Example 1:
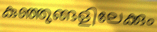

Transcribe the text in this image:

കുഞ്ഞുങ്ങളിലേക്കും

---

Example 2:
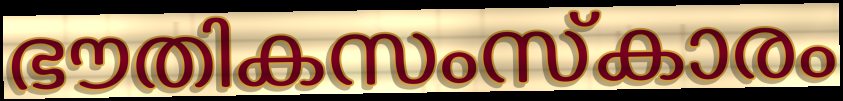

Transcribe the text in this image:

ഭൗതികസംസ്‌കാരം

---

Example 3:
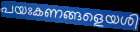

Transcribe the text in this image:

പയഃകണങ്ങളെയശി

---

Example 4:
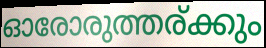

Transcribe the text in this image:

ഓരോരുത്തര്ക്കും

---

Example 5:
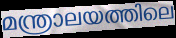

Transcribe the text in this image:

മന്ത്രാലയത്തിലെ